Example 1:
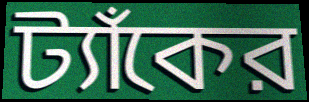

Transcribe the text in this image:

ট্যাঁকের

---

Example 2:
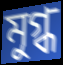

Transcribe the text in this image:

মুগ্ধ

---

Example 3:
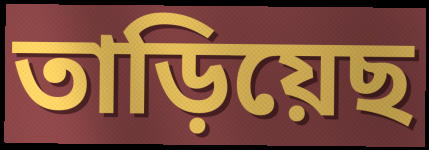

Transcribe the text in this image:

তাড়িয়েছ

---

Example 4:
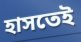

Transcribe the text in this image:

হাসতেই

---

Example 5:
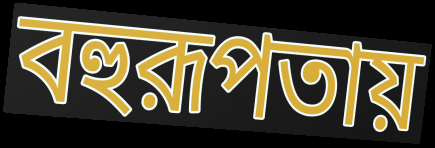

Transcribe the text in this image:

বহুরূপতায়